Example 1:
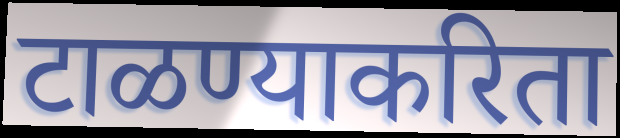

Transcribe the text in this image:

टाळण्याकरिता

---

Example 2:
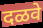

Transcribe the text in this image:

दळवे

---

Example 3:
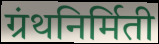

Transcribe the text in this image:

ग्रंथनिर्मिती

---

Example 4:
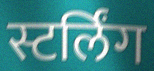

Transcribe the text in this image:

स्टर्लिंग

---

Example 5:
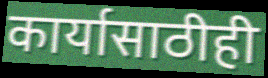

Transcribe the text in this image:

कार्यासाठीही